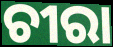
ଚୀରା